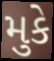
મુકે